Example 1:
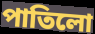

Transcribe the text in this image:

পাতিলো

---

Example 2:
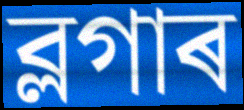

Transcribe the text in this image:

ব্লগাৰ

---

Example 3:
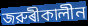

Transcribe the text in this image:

জৰুৰীকালীন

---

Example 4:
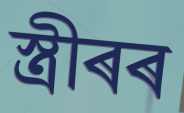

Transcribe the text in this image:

স্ত্ৰীৰৰ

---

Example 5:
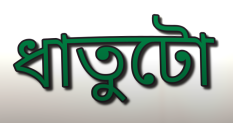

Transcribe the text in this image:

ধাতুটো